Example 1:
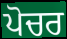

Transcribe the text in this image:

ਪੋਚਰ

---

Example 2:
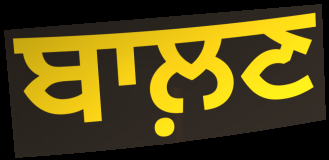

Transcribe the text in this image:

ਬਾਲ਼ਣ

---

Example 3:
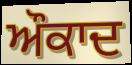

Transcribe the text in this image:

ਔਕਾਦ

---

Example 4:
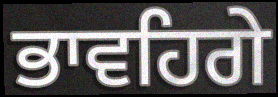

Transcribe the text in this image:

ਭਾਵਹਿਗੇ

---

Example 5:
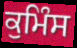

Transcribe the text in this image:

ਕੁਮਿੰਸ